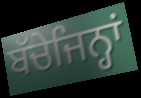
ਬੱਚੇਜਿਨ੍ਹਾਂ